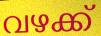
വഴക്ക്